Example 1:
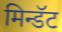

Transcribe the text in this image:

मिन्डॅट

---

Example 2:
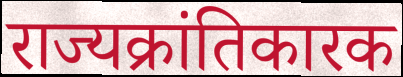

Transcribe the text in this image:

राज्यक्रांतिकारक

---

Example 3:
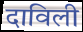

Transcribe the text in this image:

दाविली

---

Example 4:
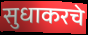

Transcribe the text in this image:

सुधाकरचे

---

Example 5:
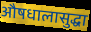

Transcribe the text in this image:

औषधालासुद्धा